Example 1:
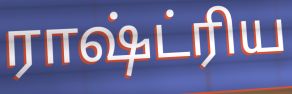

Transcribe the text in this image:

ராஷ்ட்ரிய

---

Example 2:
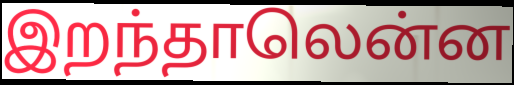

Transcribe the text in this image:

இறந்தாலென்ன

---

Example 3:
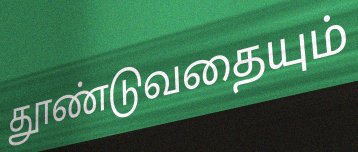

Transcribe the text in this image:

தூண்டுவதையும்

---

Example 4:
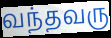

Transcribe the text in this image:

வந்தவரு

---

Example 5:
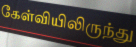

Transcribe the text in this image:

கேள்வியிலிருந்து